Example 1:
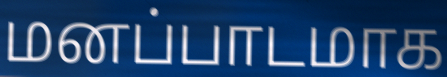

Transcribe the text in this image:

மனப்பாடமாக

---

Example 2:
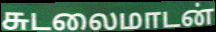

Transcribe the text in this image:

சுடலைமாடன்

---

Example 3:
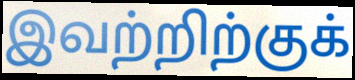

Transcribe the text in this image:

இவற்றிற்குக்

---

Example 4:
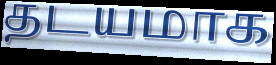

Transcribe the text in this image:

தடயமாக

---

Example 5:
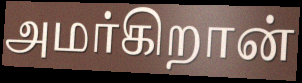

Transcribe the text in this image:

அமர்கிறான்